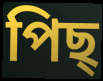
পিছ্